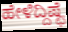
ಹೇಳಿದ್ದಿಷ್ಟೆ